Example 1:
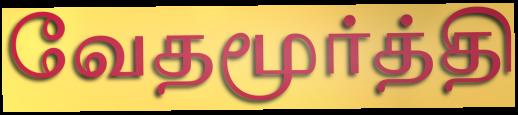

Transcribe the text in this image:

வேதமூர்த்தி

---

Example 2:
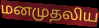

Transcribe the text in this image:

மனமுதலிய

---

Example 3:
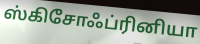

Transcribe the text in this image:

ஸ்கிசோஃப்ரினியா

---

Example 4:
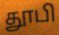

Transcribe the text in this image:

தூபி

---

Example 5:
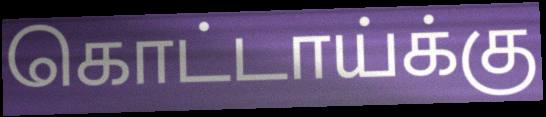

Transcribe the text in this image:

கொட்டாய்க்கு